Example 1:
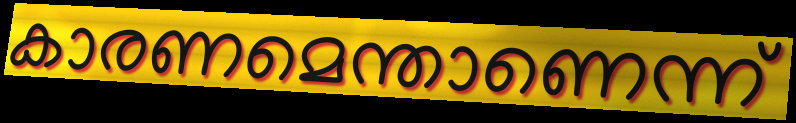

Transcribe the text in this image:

കാരണമെന്താണെന്ന്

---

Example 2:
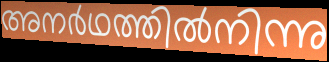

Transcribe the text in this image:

അനർഥത്തിൽനിന്നു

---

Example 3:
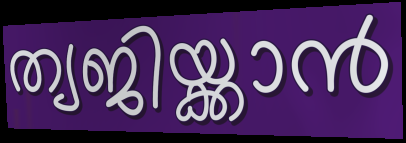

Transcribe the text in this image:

ത്യജിയ്ക്കാൻ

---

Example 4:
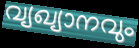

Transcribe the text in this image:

വ്യഖ്യാനവും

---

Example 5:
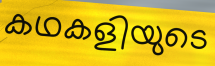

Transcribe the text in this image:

കഥകളിയുടെ